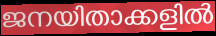
ജനയിതാക്കളിൽ